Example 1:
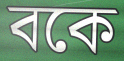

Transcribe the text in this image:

বকে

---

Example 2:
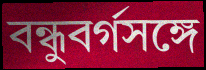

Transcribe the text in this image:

বন্ধুবর্গসঙ্গে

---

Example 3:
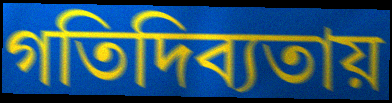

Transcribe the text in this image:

গতিদিব্যতায়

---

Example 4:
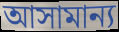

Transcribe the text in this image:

আসামান্য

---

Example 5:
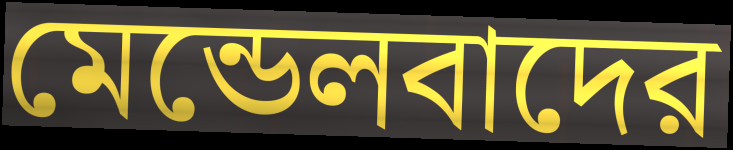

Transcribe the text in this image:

মেন্ডেলবাদের